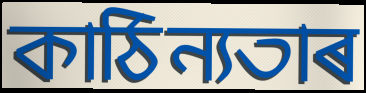
কাঠিন্যতাৰ